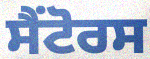
ਸੈਂਟੋਰਸ